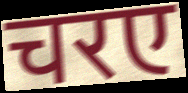
चरए